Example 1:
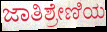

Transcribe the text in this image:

ಜಾತಿಶ್ರೇಣಿಯ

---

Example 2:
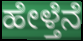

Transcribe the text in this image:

ಹೇಳ್ತೆನೆ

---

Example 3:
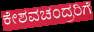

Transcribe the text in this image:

ಕೇಶವಚಂದ್ರರಿಗೆ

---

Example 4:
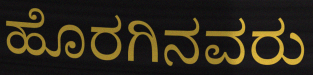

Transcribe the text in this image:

ಹೊರಗಿನವರು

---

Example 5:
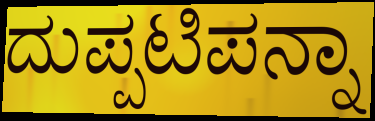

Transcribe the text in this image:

ದುಪ್ಪಟಿಪನ್ನಾ